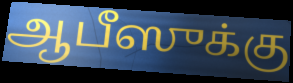
ஆபீஸுக்கு